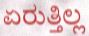
ಏರುತ್ತಿಲ್ಲ